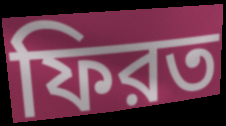
ফিরত